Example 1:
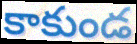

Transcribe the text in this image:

కాకుండ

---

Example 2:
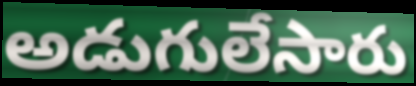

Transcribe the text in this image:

అడుగులేసారు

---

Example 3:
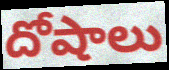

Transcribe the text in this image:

దోషాలు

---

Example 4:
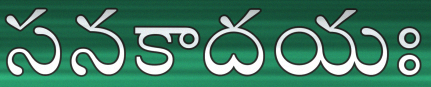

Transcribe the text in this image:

సనకాదయః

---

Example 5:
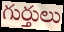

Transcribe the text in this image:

గుర్తులు